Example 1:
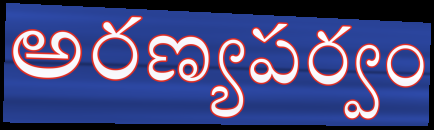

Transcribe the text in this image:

అరణ్యపర్వం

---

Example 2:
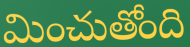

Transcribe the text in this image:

మించుతోంది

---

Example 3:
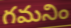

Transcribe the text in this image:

గమనిం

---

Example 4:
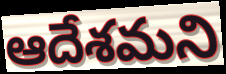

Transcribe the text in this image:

ఆదేశమని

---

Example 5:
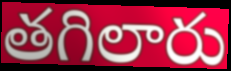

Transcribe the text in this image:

తగిలారు